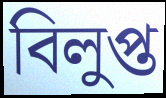
বিলুপ্ত